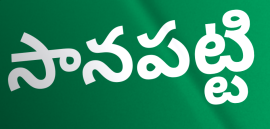
సానపట్టి